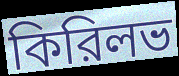
কিরিলভ